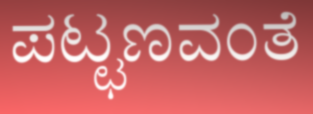
ಪಟ್ಟಣವಂತೆ